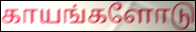
காயங்களோடு